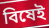
বিষেই